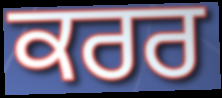
ਕਰਰ